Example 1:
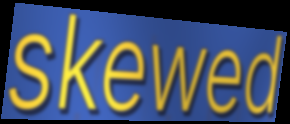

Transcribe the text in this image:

skewed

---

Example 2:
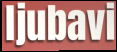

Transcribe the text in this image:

ljubavi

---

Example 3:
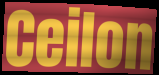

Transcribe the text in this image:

Ceilon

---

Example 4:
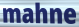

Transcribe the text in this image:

mahne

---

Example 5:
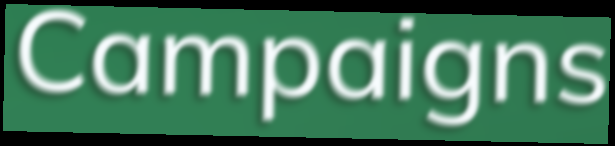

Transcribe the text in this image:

Campaigns